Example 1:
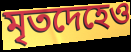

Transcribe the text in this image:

মৃতদেহেও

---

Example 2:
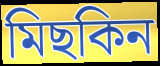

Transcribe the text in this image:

মিছকিন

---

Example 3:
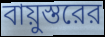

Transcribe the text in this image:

বায়ুস্তরের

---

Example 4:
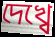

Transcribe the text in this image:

দেখ্বে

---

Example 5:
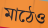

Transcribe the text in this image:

মাঠেও